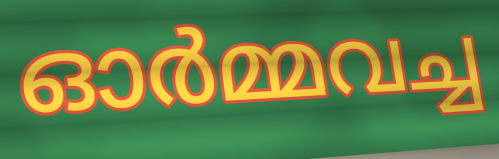
ഓർമ്മവച്ച